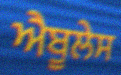
ਐਬੂਲੇਸ